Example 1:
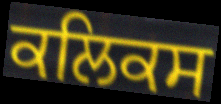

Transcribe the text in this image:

ਕਲਿਕਸ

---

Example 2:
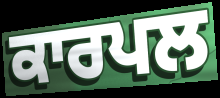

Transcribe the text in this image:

ਕਾਰਪਲ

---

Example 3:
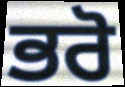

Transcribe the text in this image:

ਭਰੋ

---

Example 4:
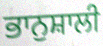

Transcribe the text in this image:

ਭਾਨੁਸ਼ਾਲੀ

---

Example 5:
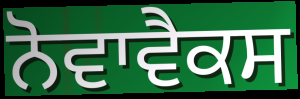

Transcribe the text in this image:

ਨੋਵਾਵੈਕਸ